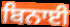
ਬਿਨਾਈ